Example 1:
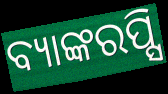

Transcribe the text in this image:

ବ୍ୟାଙ୍କରପ୍ସି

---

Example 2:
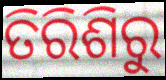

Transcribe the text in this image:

ତିରିଶିରୁ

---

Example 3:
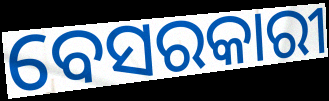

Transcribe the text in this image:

ବେସରକାରୀ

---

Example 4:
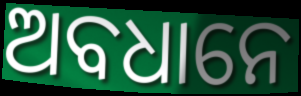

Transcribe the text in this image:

ଅବଧାନେ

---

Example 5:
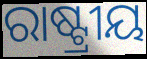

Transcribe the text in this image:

ରାଷ୍ଟ୍ରୀୟ